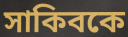
সাকিবকে